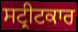
ਸਟ੍ਰੀਟਕਾਰ